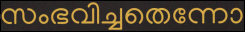
സംഭവിച്ചതെന്നോ